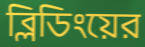
ব্লিডিংয়ের